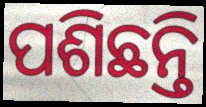
ପଶିଛନ୍ତି